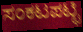
ಸಂಕಟಪಟ್ಟೆ